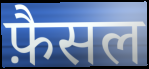
फ़ैसल